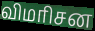
விமரிசன